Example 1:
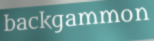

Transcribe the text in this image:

backgammon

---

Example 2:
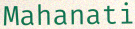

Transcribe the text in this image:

Mahanati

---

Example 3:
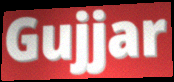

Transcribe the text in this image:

Gujjar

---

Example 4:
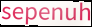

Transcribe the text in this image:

sepenuh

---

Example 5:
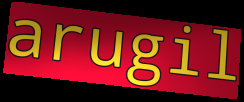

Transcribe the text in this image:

arugil